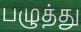
பழுத்து